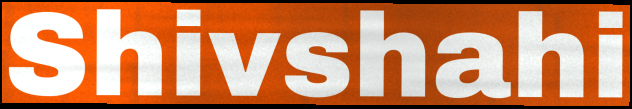
Shivshahi